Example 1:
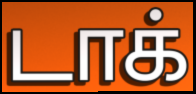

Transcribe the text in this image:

டாக்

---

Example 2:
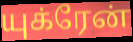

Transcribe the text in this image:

யுக்ரேன்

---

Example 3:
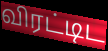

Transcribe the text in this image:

விரட்டிட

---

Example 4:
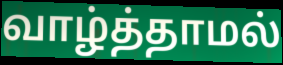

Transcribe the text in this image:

வாழ்த்தாமல்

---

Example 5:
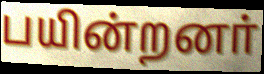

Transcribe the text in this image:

பயின்றனர்